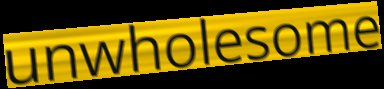
unwholesome